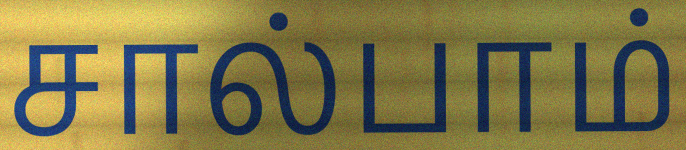
சால்பாம்